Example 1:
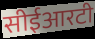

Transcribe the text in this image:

सीईआरटी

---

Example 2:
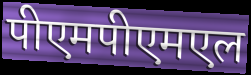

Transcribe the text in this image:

पीएमपीएमएल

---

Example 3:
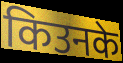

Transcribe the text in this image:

किउनके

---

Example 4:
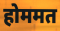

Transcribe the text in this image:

होममत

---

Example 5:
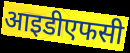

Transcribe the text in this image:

आइडीएफसी